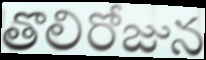
తొలిరోజున